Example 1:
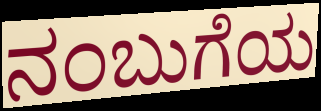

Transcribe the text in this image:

ನಂಬುಗೆಯ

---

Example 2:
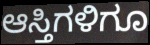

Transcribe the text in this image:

ಆಸ್ತಿಗಳಿಗೂ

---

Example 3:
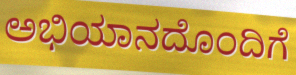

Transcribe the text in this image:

ಅಭಿಯಾನದೊಂದಿಗೆ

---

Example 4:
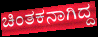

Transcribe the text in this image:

ಚಿಂತಕನಾಗಿದ್ದ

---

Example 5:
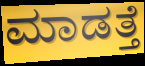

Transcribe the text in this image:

ಮಾಡತ್ತೆ